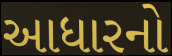
આધારનો